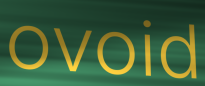
ovoid